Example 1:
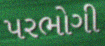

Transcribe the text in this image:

પરભોગી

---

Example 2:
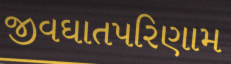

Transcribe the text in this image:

જીવઘાતપરિણામ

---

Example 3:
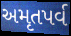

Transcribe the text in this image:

અમૃતપર્વ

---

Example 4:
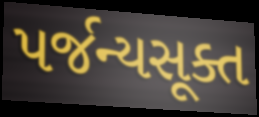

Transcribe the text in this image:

પર્જન્યસૂક્ત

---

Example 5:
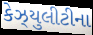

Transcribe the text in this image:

કેઝ્યુલીટીના